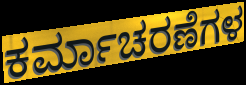
ಕರ್ಮಾಚರಣೆಗಳ